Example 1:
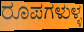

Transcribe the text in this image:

ರೂಪಗಳುಳ್ಳ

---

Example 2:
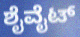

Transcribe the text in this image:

ಶೈವೈಟ್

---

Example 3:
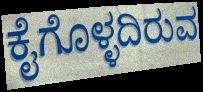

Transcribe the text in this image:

ಕೈಗೊಳ್ಳದಿರುವ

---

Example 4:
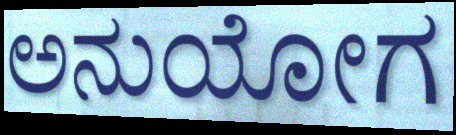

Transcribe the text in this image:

ಅನುಯೋಗ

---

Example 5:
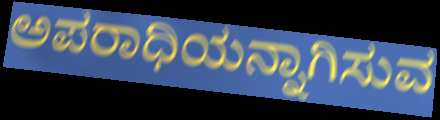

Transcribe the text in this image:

ಅಪರಾಧಿಯನ್ನಾಗಿಸುವ